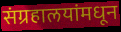
संग्रहालयांमधून